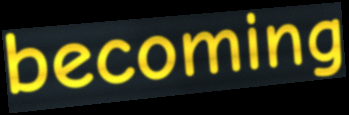
becoming